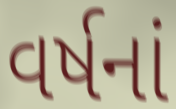
વર્ષનાં